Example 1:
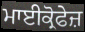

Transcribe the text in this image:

ਮਾਈਕ੍ਰੋਫੇਜ਼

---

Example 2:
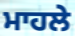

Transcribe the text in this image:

ਮਾਹਲੇ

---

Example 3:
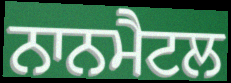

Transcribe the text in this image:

ਨਾਨਮੈਟਲ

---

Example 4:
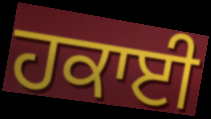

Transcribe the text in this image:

ਹਕਾਈ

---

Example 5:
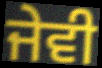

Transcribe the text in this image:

ਜੇਵੀ